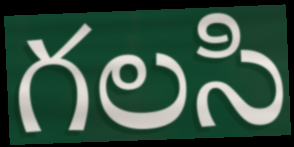
గలసి